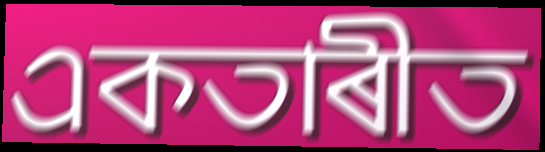
একতাৰীত